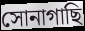
সোনাগাছি